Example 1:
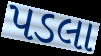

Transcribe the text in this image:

પડલા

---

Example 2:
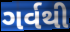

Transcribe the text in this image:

ગર્વથી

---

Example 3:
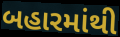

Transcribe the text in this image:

બહારમાંથી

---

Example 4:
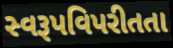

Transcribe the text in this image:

સ્વરૂપવિપરીતતા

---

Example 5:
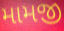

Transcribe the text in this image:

મામજી